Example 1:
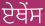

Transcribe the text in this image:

ਏਥੇਂਸ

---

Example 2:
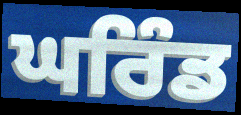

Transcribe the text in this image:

ਘਰਿੰਡ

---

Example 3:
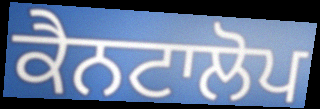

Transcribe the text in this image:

ਕੈਨਟਾਲੋਪ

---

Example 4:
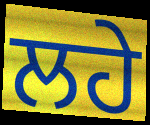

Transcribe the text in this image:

ਲਹੇ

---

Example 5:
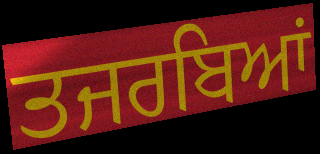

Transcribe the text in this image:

ਤਜਰਬਿਆਂ